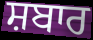
ਸ਼ਬਾਰ